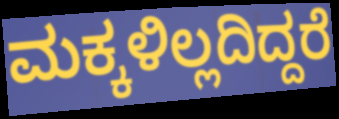
ಮಕ್ಕಳಿಲ್ಲದಿದ್ದರೆ